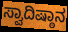
ಸ್ವಾದಿಷ್ಠಾನ